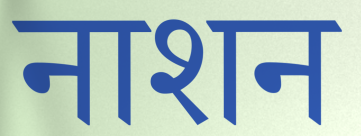
नाशन